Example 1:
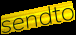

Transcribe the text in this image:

sendto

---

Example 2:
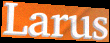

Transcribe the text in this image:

Larus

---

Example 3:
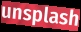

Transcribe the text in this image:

unsplash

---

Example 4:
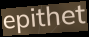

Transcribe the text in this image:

epithet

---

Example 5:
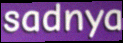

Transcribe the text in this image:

sadnya